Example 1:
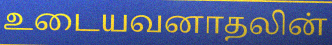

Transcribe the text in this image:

உடையவனாதலின்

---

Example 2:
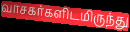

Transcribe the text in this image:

வாசகர்களிடமிருந்து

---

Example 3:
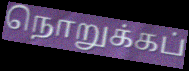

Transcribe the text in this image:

நொறுக்கப்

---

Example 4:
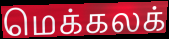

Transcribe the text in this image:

மெக்கலக்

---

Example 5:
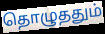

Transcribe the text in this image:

தொழுததும்